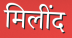
मिलींद